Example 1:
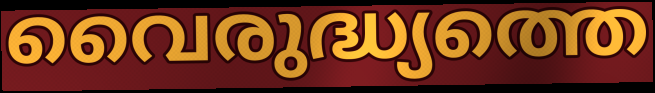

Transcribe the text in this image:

വൈരുദ്ധ്യത്തെ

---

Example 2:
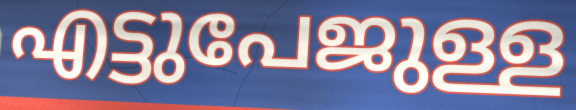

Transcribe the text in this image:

എട്ടുപേജുള്ള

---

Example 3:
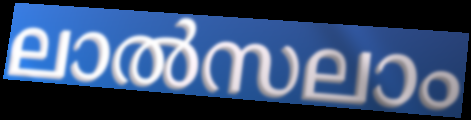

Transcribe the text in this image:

ലാൽസലാം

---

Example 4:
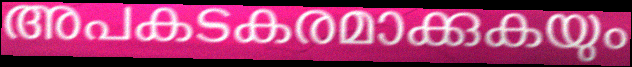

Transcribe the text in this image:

അപകടകരമാക്കുകയും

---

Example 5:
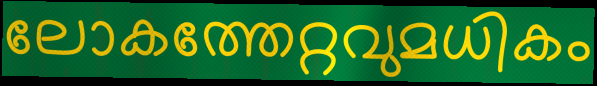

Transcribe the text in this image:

ലോകത്തേറ്റവുമധികം